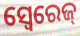
ସ୍ୱେରେଜ୍